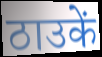
ठाउकें